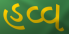
હવ્વ